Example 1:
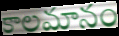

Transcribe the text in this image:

కాలమానం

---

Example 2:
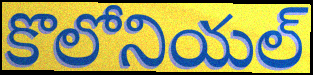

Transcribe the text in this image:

కొలోనియల్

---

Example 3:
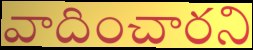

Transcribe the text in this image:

వాదించారని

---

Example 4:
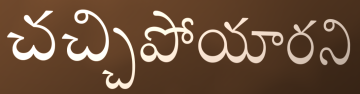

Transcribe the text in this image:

చచ్చిపోయారని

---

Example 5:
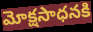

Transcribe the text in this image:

మోక్షసాధనకి